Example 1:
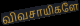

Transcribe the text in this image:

விவசாயிகளே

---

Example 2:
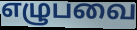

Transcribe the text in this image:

எழுபவை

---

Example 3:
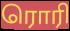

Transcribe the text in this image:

ரொரி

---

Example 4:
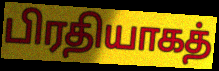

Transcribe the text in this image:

பிரதியாகத்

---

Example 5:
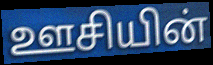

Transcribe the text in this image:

ஊசியின்